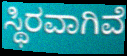
ಸ್ಥಿರವಾಗಿವೆ